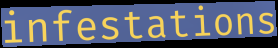
infestations